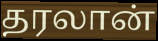
தரலான்